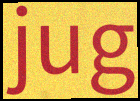
jug